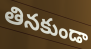
తినకుండా